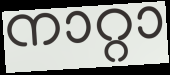
നാറ്റാ